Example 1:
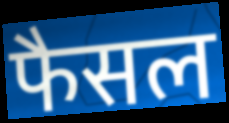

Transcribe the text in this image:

फैसल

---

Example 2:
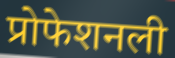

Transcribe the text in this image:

प्रोफेशनली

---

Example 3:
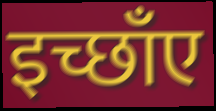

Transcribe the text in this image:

इच्छाँए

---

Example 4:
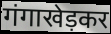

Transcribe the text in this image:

गंगाखेड़कर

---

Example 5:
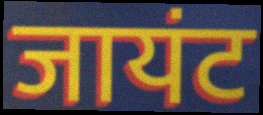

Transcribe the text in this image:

जायंट